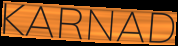
KARNAD